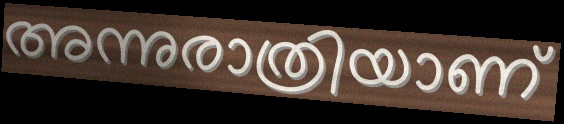
അന്നുരാത്രിയാണ്